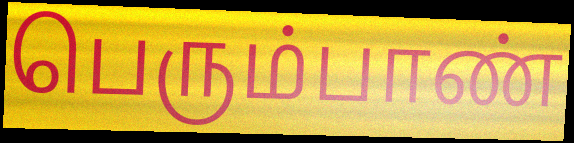
பெரும்பாண்